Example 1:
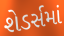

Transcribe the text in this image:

શેડર્સમાં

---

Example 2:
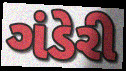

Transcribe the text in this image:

ગંડેરી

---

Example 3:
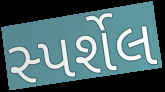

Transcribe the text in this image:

સ્પર્શેલ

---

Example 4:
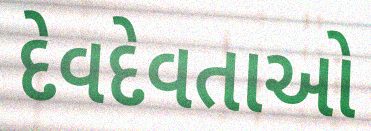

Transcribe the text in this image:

દેવદેવતાઓ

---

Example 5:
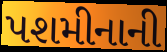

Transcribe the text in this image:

પશમીનાની